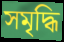
সমৃদ্ধি